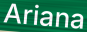
Ariana